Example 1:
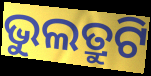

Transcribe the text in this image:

ଭୁଲତ୍ରୁଟି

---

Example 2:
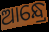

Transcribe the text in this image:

ଆନ୍ଧ୍ରେ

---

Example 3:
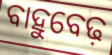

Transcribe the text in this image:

ବାହୁବେଢ଼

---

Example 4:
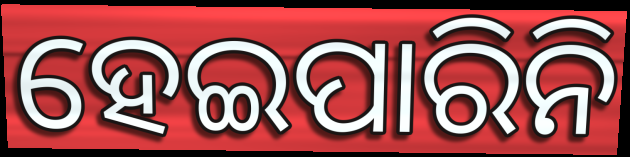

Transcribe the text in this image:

ହେଇପାରିନି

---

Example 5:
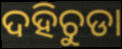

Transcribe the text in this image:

ଦହିଚୁଡା